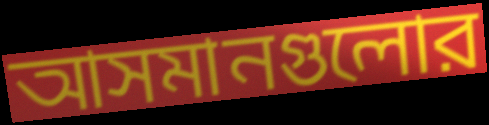
আসমানগুলোর